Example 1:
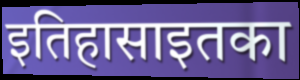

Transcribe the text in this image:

इतिहासाइतका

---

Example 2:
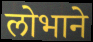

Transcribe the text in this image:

लोभाने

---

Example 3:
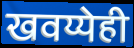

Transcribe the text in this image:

खवय्येही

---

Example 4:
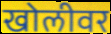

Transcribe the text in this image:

खोलीवर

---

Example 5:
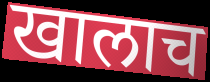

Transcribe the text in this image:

खालाच